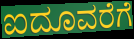
ಐದೂವರೆಗೆ